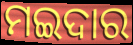
ମଇଦାର